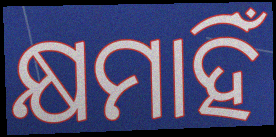
କ୍ଷମାହିଁ